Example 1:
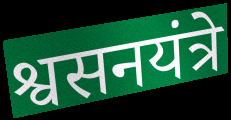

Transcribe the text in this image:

श्वसनयंत्रे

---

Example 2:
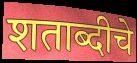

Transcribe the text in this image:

शताब्दीचे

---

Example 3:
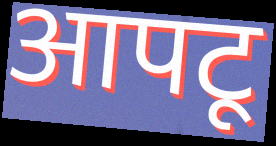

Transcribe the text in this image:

आपटू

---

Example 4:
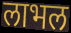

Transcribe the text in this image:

लाभल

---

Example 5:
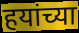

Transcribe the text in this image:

हयांच्या